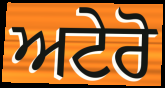
ਅਟੇਰੋ